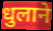
धुलाने